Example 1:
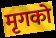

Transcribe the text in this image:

मृगको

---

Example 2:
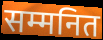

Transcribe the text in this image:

सम्मनित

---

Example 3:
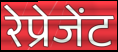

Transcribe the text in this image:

रेप्रेजेंट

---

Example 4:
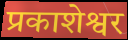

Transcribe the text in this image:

प्रकाशेश्वर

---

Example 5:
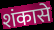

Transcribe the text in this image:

शंकासे